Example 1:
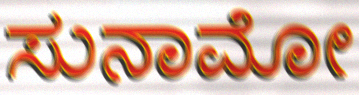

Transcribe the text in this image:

ಸುನಾಮೋ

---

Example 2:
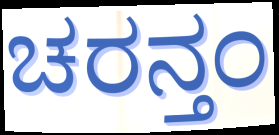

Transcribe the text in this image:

ಚರನ್ತಂ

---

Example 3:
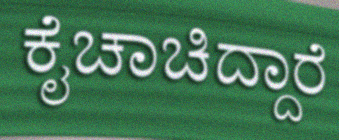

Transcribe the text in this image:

ಕೈಚಾಚಿದ್ದಾರೆ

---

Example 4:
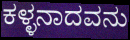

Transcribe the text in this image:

ಕಳ್ಳನಾದವನು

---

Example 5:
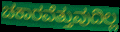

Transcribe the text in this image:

ಚಕಾರವೆತ್ತುವುದಿಲ್ಲ